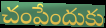
చంపేందుకు